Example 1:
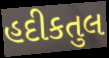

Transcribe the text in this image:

હદીકતુલ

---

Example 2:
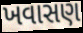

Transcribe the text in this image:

ખવાસણ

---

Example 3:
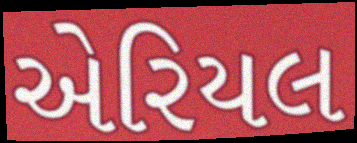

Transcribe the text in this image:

એરિયલ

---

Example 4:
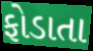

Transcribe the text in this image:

ફોડાતા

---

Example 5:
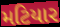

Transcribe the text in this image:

મટિયાર